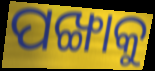
ପଙ୍ଖାକୁ